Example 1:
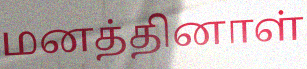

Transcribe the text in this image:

மனத்தினாள்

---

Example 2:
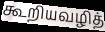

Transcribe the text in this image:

கூறியவழித்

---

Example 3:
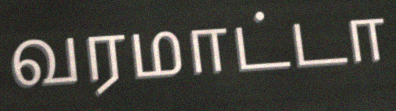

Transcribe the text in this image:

வரமாட்டா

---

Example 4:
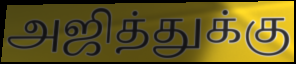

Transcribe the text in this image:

அஜித்துக்கு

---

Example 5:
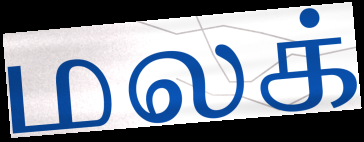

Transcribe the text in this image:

மலக்